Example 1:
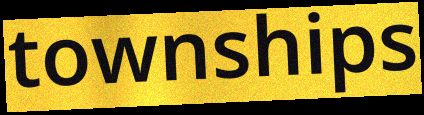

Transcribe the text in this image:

townships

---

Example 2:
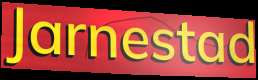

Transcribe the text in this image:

Jarnestad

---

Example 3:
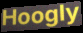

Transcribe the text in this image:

Hoogly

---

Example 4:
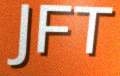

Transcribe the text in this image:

JFT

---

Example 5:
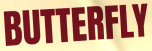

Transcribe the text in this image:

BUTTERFLY